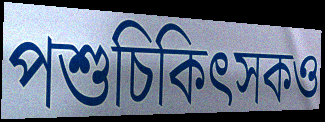
পশুচিকিৎসকও